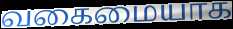
வகைமையாக